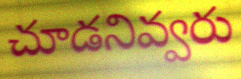
చూడనివ్వరు